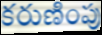
కరుణింపు